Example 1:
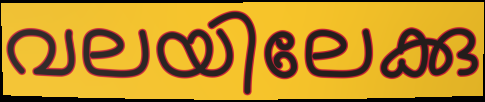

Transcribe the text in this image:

വലയിലേക്കു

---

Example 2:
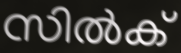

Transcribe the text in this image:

സിൽക്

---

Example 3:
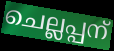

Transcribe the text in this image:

ചെല്ലപ്പന്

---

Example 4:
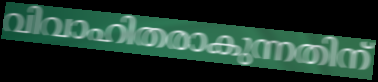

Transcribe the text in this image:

വിവാഹിതരാകുന്നതിന്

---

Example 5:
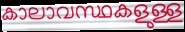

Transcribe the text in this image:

കാലാവസ്ഥകളുള്ള